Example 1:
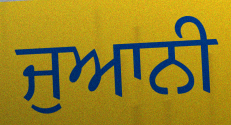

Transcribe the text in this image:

ਜੁਆਨੀ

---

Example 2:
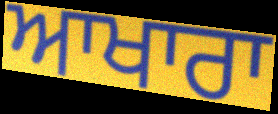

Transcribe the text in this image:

ਆਖਾਰਾ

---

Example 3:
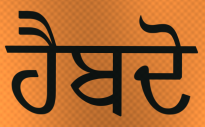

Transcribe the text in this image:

ਹੈਬਦੋ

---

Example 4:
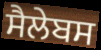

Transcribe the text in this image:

ਸੈਲੇਬਸ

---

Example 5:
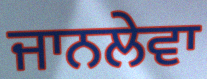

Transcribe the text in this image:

ਜਾਨਲੇਵਾ